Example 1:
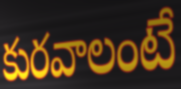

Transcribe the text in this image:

కురవాలంటే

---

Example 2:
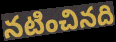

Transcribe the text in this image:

నటించినది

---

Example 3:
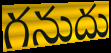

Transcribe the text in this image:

గనుదు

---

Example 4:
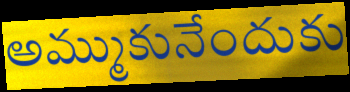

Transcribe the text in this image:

అమ్ముకునేందుకు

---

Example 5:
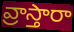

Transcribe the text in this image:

వ్రాస్తారా